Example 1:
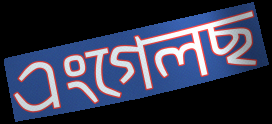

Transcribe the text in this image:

এংগেলছ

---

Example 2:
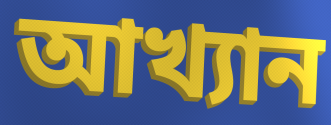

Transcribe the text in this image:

আখ্যান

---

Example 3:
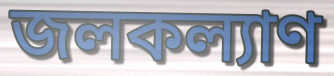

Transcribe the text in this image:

জলকল্যাণ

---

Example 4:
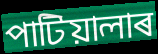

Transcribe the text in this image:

পাটিয়ালাৰ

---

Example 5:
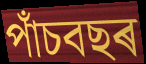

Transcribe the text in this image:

পাঁচবছৰ